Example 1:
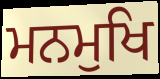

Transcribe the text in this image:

ਮਨਮੁਖਿ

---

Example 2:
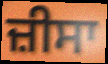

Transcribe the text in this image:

ਜ਼ੀਸਾ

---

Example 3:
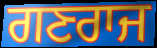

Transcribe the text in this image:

ਗਣਰਾਜ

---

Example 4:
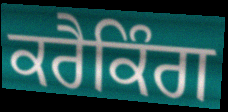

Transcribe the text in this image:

ਕਰੈਕਿੰਗ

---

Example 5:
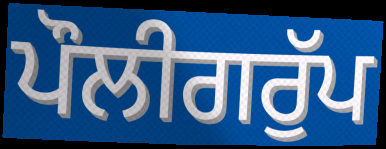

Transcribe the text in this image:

ਪੌਲੀਗਰੁੱਪ